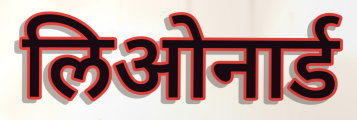
लिओनार्ड